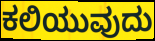
ಕಲಿಯುವುದು